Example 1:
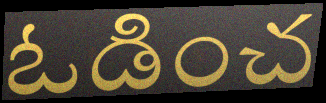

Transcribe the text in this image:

ఓడించ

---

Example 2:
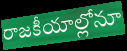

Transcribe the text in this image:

రాజకీయాల్లోనూ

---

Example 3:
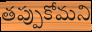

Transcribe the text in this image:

తప్పుకోమని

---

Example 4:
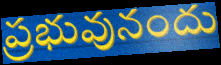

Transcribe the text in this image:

ప్రభువునందు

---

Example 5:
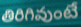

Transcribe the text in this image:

తిరిగివుంటే